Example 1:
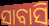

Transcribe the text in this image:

ସାବାସି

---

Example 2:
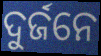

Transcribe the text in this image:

ଦୁର୍ଜନେ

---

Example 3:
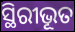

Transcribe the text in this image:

ସ୍ଥିରୀଭୂତ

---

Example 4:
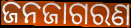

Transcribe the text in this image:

ଜନଜାଗରଣ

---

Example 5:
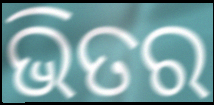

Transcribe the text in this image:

ଭିତର